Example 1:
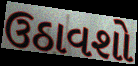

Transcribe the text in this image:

ઉઠાવશો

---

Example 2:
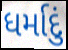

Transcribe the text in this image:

ધર્માદું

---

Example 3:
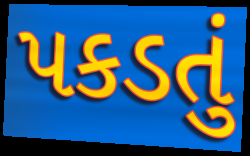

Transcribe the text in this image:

પકડતું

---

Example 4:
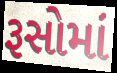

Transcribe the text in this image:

રૂસોમાં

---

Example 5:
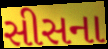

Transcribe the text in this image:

સીસના